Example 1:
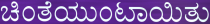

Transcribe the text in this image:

ಚಿಂತೆಯುಂಟಾಯಿತು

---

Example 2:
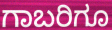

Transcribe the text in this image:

ಗಾಬರಿಗೂ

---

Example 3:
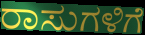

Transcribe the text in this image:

ರಾಸುಗಳಿಗೆ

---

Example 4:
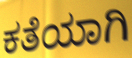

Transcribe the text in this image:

ಕತೆಯಾಗಿ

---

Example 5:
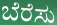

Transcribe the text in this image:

ಬೆರೆಸು